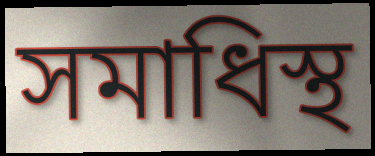
সমাধিস্থ